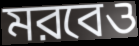
মরবেও